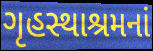
ગૃહસ્થાશ્રમનાં